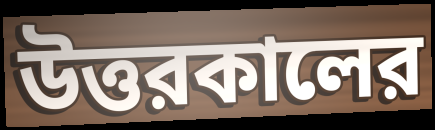
উত্তরকালের